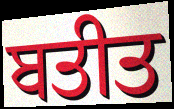
ਬਤੀਤ